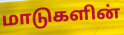
மாடுகளின்